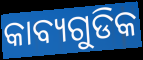
କାବ୍ୟଗୁଡିକ